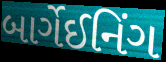
બાર્ગેઈનિંગ